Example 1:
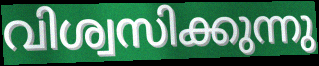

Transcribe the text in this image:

വിശ്വസിക്കുന്നു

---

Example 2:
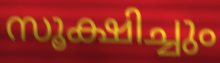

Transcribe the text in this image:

സൂക്ഷിച്ചും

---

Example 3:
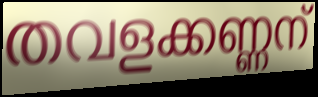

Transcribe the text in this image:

തവളക്കണ്ണന്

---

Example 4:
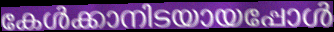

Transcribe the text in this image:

കേൾക്കാനിടയായപ്പോൾ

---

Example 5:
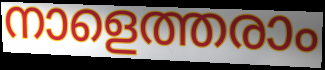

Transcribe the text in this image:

നാളെത്തരാം